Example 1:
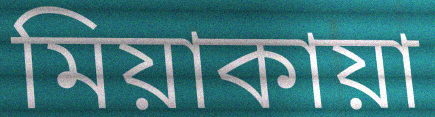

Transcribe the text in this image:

মিয়াকায়া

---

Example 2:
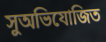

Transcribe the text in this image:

সুঅভিযোজিত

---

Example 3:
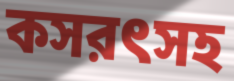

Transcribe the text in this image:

কসরৎসহ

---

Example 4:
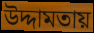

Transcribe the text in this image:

উদ্দামতায়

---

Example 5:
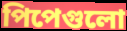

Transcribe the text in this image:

পিপেগুলো